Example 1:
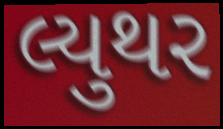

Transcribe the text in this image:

લ્યુથર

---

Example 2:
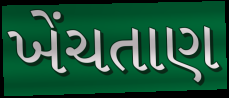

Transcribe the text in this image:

ખેંચતાણ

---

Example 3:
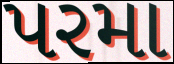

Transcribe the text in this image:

પરમા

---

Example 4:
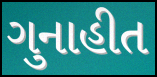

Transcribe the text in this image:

ગુનાહીત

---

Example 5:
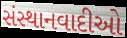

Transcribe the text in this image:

સંસ્થાનવાદીઓ